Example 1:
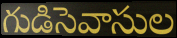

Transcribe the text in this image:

గుడిసెవాసుల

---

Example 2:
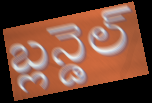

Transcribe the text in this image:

బ్లన్డెల్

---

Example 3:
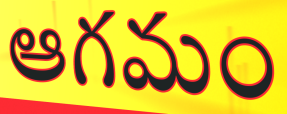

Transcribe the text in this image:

ఆగమం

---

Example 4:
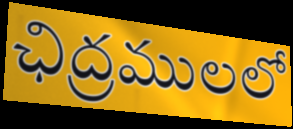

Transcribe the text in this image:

ఛిద్రములలో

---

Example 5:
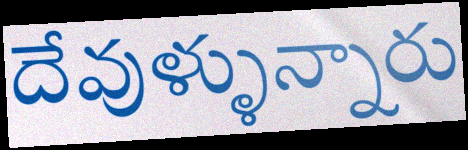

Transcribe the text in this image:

దేవుళ్ళున్నారు